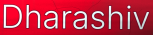
Dharashiv